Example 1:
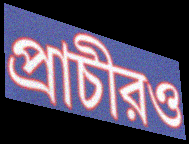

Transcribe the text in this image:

প্রাচীরও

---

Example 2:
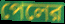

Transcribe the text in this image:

পেলের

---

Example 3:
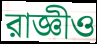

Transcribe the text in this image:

রাজ্ঞীও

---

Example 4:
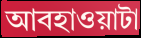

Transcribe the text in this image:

আবহাওয়াটা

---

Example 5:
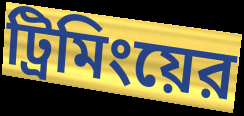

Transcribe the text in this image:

ট্রিমিংয়ের